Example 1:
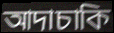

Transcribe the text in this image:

আদাচাকি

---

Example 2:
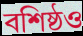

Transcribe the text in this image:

বশিষ্ঠও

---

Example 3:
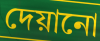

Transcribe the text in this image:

দেয়ানো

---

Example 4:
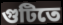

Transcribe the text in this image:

গুটিতে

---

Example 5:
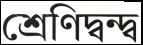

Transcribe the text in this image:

শ্রেণিদ্বন্দ্ব